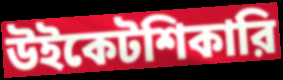
উইকেটশিকারি